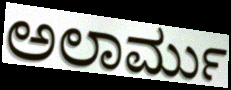
ಅಲಾರ್ಮು